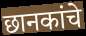
छानकांचे